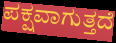
ಪಕ್ಷವಾಗುತ್ತದೆ